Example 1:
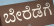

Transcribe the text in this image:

ಬೇರೆಡೆಗೆ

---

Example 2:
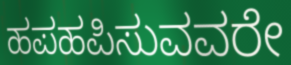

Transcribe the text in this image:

ಹಪಹಪಿಸುವವರೇ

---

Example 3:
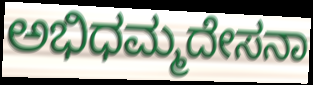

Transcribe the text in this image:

ಅಭಿಧಮ್ಮದೇಸನಾ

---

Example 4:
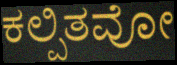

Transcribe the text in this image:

ಕಲ್ಪಿತವೋ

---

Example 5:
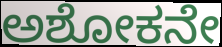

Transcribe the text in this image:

ಅಶೋಕನೇ